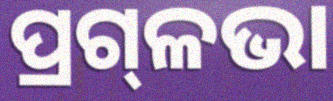
ପ୍ରଗ୍‌ଳଭା